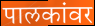
पालकांवर